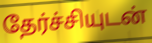
தேர்ச்சியுடன்